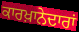
ਕਾਰਖ਼ਾਨੇਦਾਰਾਂ